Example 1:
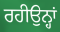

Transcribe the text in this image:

ਰਹੀਉਨ੍ਹਾਂ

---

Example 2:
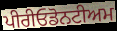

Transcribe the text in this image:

ਪੀਰੀਓਡੋਨਟੀਅਮ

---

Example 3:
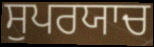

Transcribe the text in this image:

ਸੁਪਰਯਾਚ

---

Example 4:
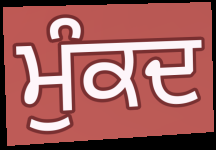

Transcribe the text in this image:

ਮੁੰਕਦ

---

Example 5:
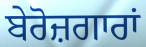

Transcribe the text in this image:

ਬੇਰੋਜ਼ਗਾਰਾਂ